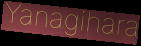
Yanagihara